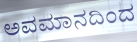
ಅವಮಾನದಿಂದ